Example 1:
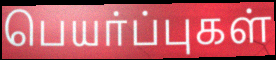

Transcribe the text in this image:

பெயர்ப்புகள்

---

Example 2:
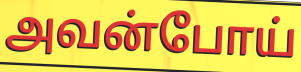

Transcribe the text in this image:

அவன்போய்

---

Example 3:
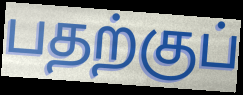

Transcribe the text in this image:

பதற்குப்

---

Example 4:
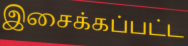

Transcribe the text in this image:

இசைக்கப்பட்ட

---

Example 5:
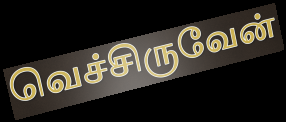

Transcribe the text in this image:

வெச்சிருவேன்